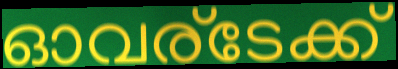
ഓവര്ടേക്ക്